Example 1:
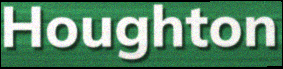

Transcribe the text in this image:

Houghton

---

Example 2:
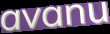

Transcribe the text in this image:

avanu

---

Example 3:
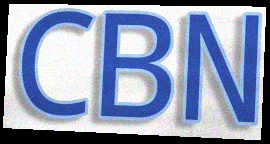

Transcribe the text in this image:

CBN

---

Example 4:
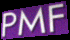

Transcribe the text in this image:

PMF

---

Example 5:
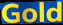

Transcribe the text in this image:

Gold